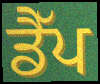
ਡੈੱਪ